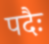
पदैः